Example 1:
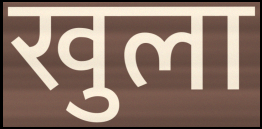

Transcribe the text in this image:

खुला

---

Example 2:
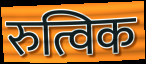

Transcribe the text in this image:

रुत्विक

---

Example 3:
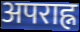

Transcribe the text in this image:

अपराह्न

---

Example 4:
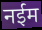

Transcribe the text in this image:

नईम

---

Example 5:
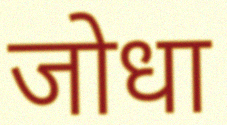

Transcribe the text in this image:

जोधा